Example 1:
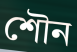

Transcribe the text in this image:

শৌন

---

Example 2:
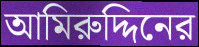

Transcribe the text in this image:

আমিরুদ্দিনের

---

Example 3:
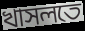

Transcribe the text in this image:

খাসলতে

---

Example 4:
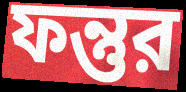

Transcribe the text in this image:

ফন্তুর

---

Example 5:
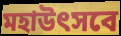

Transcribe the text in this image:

মহাউৎসবে